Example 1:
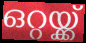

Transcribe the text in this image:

ഒറ്റയ്ക്ക്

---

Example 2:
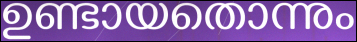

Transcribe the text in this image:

ഉണ്ടായതൊന്നും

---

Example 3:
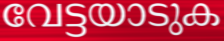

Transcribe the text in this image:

വേട്ടയാടുക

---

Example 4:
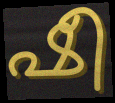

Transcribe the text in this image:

ഷീ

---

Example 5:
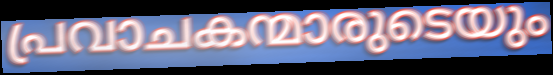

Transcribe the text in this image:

പ്രവാചകന്മാരുടെയും